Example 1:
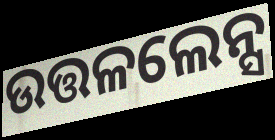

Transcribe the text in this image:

ଉତ୍ତଳଲେନ୍ସ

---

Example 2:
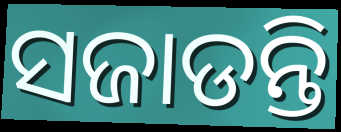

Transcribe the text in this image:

ସଜାଡନ୍ତି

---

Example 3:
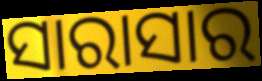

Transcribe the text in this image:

ସାରାସାର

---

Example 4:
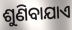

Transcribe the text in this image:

ଶୁଣିବାଯାଏ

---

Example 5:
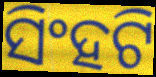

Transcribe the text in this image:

ସିଂହଟି